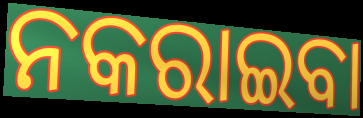
ନକରାଇବା